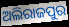
ଅଲିରାଜପୁର